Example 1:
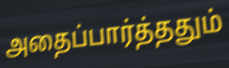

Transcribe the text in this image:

அதைப்பார்த்ததும்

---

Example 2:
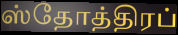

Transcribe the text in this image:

ஸ்தோத்திரப்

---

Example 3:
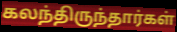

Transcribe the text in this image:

கலந்திருந்தார்கள்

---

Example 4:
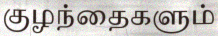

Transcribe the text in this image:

குழந்தைகளும்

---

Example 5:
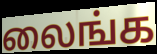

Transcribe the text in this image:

லைங்க